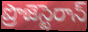
ప్రొజెస్టెరాన్